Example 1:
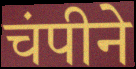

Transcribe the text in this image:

चंपीने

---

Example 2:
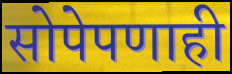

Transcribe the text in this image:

सोपेपणाही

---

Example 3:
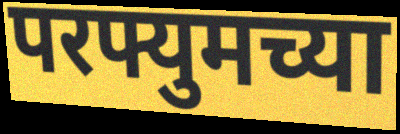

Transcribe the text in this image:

परफ्युमच्या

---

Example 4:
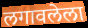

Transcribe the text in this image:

लगावलेला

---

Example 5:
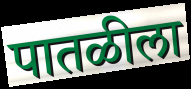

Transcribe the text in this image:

पातळीला